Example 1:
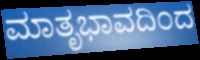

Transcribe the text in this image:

ಮಾತೃಭಾವದಿಂದ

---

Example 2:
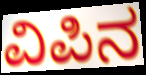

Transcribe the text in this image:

ವಿಪಿನ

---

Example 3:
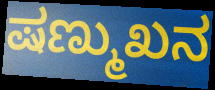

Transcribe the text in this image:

ಷಣ್ಮುಖನ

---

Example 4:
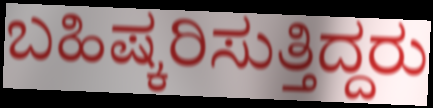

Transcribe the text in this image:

ಬಹಿಷ್ಕರಿಸುತ್ತಿದ್ದರು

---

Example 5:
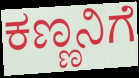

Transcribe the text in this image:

ಕಣ್ಣನಿಗೆ